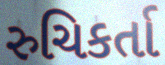
રુચિકર્તા